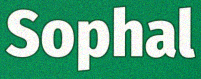
Sophal